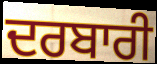
ਦਰਬਾਰੀ